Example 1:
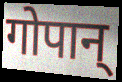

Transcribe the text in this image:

गोपान्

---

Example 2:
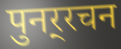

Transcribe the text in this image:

पुनर्रचन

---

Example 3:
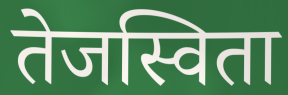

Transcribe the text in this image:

तेजस्विता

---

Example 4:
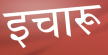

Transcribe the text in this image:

इचारू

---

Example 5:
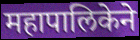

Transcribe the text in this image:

महापालिकेने